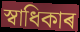
স্বাধিকাৰ